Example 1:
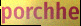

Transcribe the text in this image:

porchhe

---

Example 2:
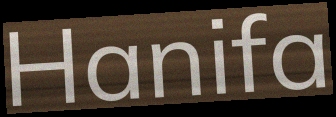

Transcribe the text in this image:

Hanifa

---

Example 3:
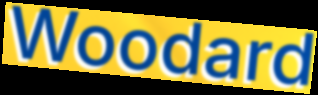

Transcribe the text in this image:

Woodard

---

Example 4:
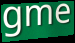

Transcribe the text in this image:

gme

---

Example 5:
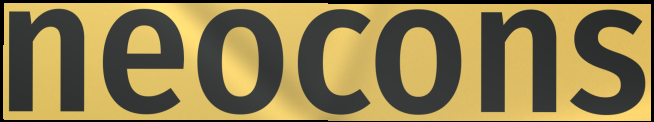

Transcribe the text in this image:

neocons